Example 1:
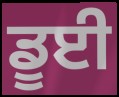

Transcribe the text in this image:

ਡੂਈ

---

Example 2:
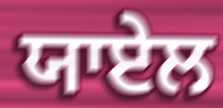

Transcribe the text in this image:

ਯਾਏਲ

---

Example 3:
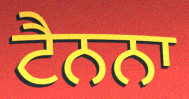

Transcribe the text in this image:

ਟੈਨਨਾ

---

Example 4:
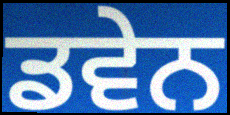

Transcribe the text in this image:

ਡਵੇਨ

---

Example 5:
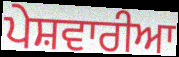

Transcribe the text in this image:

ਪੇਸ਼ਵਾਰੀਆ